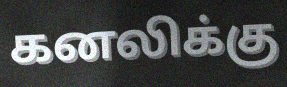
கனலிக்கு